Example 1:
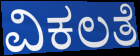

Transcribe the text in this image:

ವಿಕಲತೆ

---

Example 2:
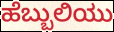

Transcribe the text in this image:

ಹೆಬ್ಬುಲಿಯು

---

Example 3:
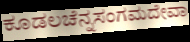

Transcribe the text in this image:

ಕೂಡಲಚೆನ್ನಸಂಗಮದೇವಾ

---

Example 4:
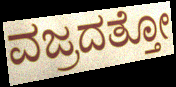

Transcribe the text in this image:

ವಜ್ರದತ್ತೋ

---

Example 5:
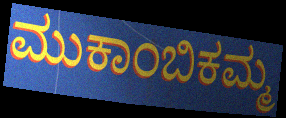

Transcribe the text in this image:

ಮುಕಾಂಬಿಕಮ್ಮ